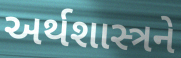
અર્થશાસ્ત્રને